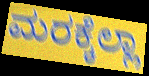
ಮರಕ್ಕೆಲ್ಲಾ